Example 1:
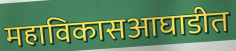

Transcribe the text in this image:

महाविकासआघाडीत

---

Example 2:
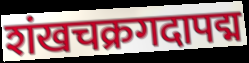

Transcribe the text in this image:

शंखचक्रगदापद्म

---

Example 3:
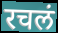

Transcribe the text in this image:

रचलं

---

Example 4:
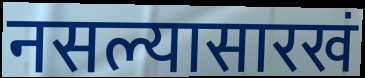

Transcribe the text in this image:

नसल्यासारखं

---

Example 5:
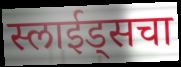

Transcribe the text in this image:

स्लाईड्सचा